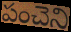
పంచెని